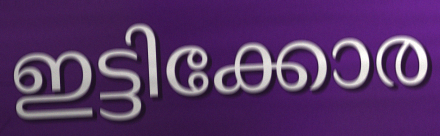
ഇട്ടിക്കോര